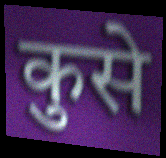
कुसे